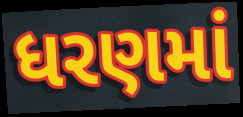
ધરણમાં